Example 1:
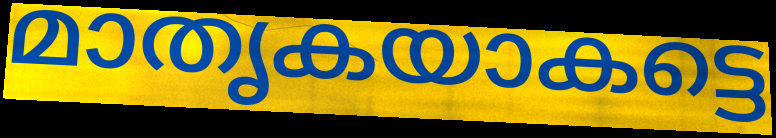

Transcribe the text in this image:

മാതൃകയാകട്ടെ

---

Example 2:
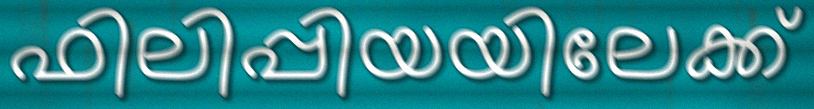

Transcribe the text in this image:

ഫിലിപ്പിയയിലേക്ക്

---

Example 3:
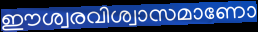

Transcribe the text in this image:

ഈശ്വരവിശ്വാസമാണോ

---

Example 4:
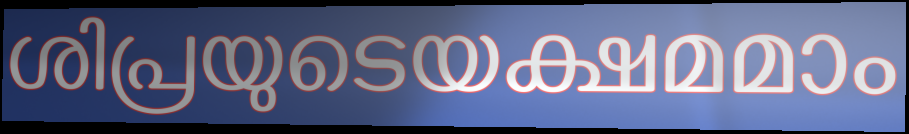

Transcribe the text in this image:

ശിപ്രയുടെയക്ഷമമാം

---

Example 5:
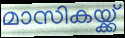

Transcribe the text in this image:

മാസികയ്ക്ക്